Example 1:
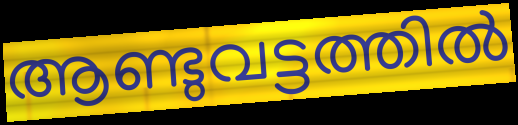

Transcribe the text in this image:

ആണ്ടുവട്ടത്തിൽ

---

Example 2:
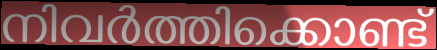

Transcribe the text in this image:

നിവർത്തിക്കൊണ്ട്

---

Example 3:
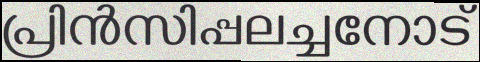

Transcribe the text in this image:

പ്രിൻസിപ്പലച്ചനോട്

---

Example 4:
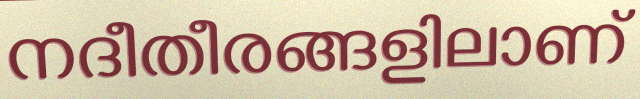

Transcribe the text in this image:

നദീതീരങ്ങളിലാണ്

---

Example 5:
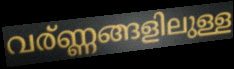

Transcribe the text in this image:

വര്ണ്ണങ്ങളിലുള്ള